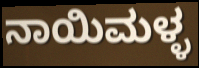
ನಾಯಿಮಳ್ಳ